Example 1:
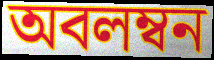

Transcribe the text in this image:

অবলম্বন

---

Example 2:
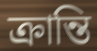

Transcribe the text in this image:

ক্ৰান্তি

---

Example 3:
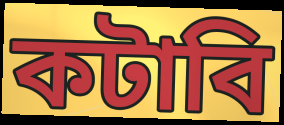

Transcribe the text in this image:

কটাবি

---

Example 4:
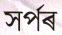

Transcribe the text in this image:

সৰ্পৰ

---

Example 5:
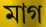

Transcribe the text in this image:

মাগ